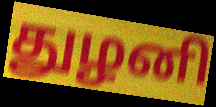
துழனி